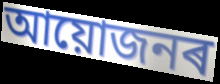
আয়োজনৰ